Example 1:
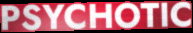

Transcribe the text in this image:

PSYCHOTIC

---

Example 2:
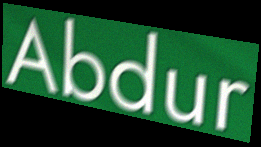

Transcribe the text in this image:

Abdur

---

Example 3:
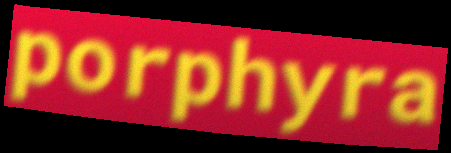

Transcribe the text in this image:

porphyra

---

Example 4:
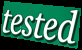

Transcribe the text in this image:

tested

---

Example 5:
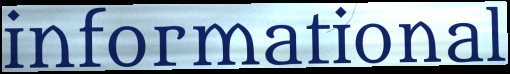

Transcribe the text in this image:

informational